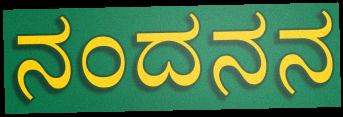
ನಂದನನ